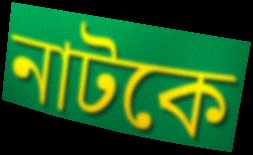
নাটকে